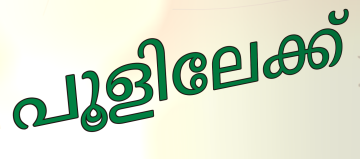
പൂളിലേക്ക്